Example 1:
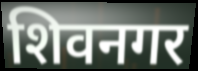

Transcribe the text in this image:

शिवनगर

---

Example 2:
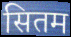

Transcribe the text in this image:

सितम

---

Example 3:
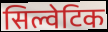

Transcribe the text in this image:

सिल्वेटिक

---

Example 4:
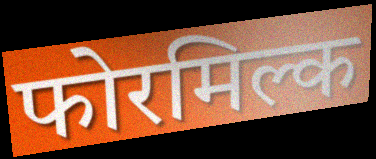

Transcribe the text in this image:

फोरमिल्क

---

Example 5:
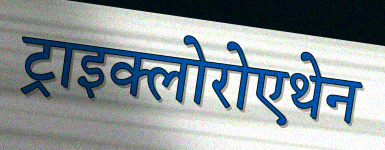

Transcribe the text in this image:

ट्राइक्लोरोएथेन